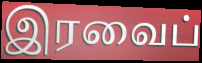
இரவைப்